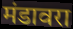
मंडावरा